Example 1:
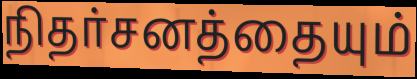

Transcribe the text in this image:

நிதர்சனத்தையும்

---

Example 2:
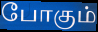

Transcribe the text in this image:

போகும்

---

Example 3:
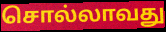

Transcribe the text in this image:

சொல்லாவது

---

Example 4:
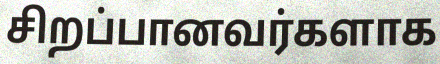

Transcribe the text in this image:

சிறப்பானவர்களாக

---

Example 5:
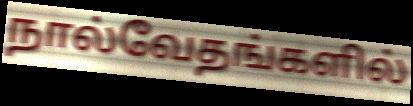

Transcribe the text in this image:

நால்வேதங்களில்